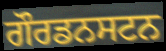
ਗੌਰਡਨਸਟਨ